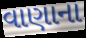
વાણાના